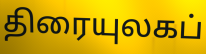
திரையுலகப்